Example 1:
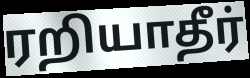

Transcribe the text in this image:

ரறியாதீர்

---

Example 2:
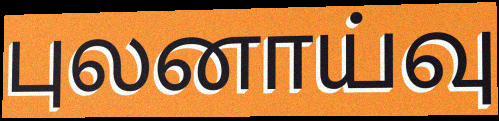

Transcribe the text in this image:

புலனாய்வு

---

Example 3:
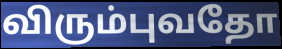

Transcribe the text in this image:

விரும்புவதோ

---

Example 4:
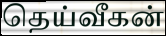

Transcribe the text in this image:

தெய்வீகன்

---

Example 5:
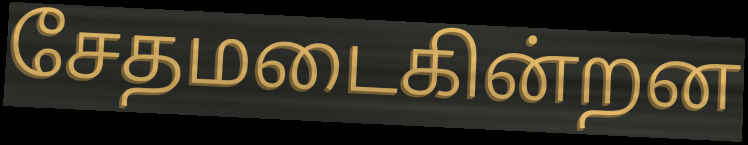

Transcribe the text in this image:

சேதமடைகின்றன